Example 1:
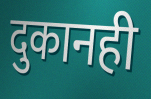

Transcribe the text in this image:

दुकानही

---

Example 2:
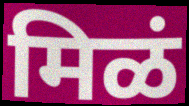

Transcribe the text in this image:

मिळं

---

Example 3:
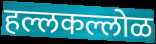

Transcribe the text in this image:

हल्लकल्लोळ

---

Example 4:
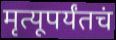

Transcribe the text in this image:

मृत्यूपर्यंतचं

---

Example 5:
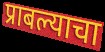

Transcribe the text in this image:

प्राबल्याचा